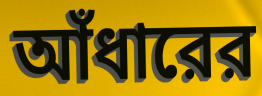
আঁধারের